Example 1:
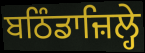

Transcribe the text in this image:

ਬਠਿੰਡਾਜ਼ਿਲ੍ਹੇ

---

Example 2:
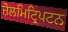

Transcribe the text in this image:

ਜ਼ੋਲਮਿਟ੍ਰਿਪਟਨ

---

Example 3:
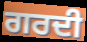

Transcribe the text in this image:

ਗਰਦੀ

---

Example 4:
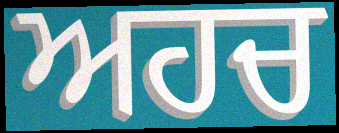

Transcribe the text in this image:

ਅਹਚ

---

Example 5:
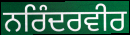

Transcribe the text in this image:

ਨਰਿੰਦਰਵੀਰ